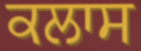
ਕਲਾਸ